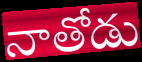
నాతోడు